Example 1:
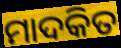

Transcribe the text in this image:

ମାଦକିତ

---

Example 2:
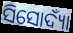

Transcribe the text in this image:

ସିସୋଦ୍ୟାଁ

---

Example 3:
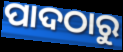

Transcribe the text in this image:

ପାଦଠାରୁ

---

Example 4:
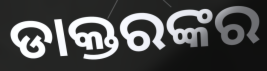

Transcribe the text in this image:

ଡାକ୍ତରଙ୍କର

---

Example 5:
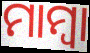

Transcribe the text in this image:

ମାମ୍ଵା